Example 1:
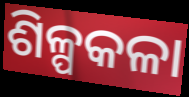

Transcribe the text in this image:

ଶିଳ୍ପକଳା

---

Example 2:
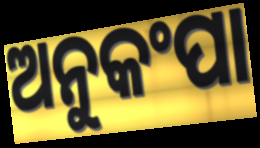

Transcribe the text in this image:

ଅନୁକଂପା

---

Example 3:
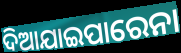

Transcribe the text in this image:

ଦିଆଯାଇପାରେନା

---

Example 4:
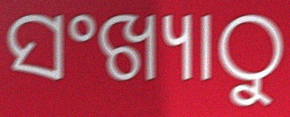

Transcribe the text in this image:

ସଂଖ୍ୟାଠୁ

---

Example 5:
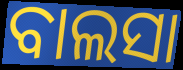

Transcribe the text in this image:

ବାଲସା